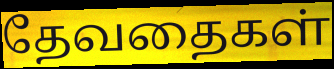
தேவதைகள்